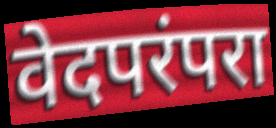
वेदपरंपरा